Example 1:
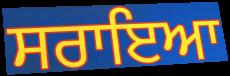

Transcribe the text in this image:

ਸਰਾਇਆ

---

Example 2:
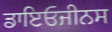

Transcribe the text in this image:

ਡਾਇਓਜੀਨਸ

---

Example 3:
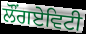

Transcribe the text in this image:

ਲੌਂਗਏਵਿਟੀ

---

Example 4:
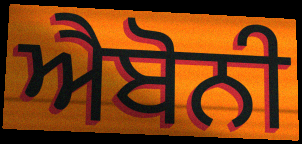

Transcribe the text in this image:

ਐਬੋਨੀ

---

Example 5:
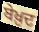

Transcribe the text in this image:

ਬੇਖ਼ੁਦ